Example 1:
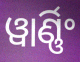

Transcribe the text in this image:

ୱାର୍ଣ୍ଣିଂ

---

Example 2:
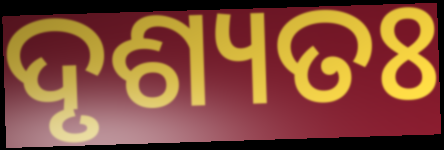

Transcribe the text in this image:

ଦୃଶ୍ୟତଃ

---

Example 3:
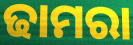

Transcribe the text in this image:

ଢାମରା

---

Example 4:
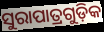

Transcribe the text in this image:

ସୁରାପାତ୍ରଗୁଡ଼ିକ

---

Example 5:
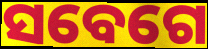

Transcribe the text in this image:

ସବେଗେ